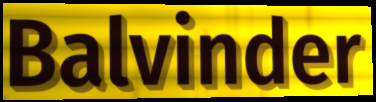
Balvinder